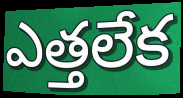
ఎత్తలేక